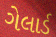
ગેલાર્ડ